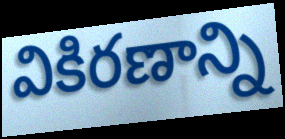
వికిరణాన్ని